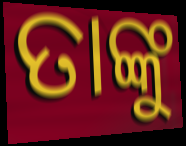
ତାଙ୍କୁ